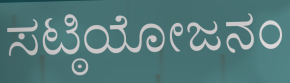
ಸಟ್ಠಿಯೋಜನಂ